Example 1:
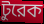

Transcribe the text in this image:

টুরেক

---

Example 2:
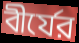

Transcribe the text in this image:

বীর্যের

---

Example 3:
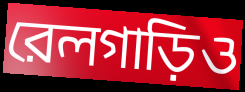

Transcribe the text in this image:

রেলগাড়িও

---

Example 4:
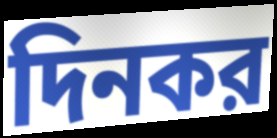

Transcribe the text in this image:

দিনকর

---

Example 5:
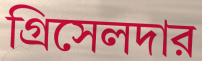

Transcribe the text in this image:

গ্রিসেলদার